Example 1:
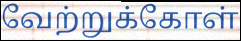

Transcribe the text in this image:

வேற்றுக்கோள்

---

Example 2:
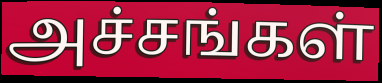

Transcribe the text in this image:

அச்சங்கள்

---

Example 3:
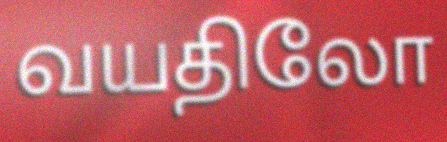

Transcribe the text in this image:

வயதிலோ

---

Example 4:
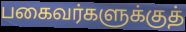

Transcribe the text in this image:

பகைவர்களுக்குத்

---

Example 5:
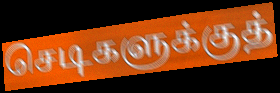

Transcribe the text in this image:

செடிகளுக்குத்